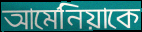
আর্মেনিয়াকে